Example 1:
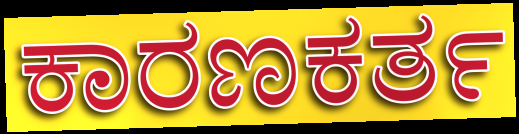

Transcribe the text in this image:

ಕಾರಣಕರ್ತ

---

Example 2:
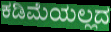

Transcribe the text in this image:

ಕಡಿಮೆಯಲ್ಲದ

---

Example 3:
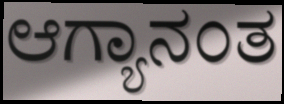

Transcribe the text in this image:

ಆಗ್ಯಾನಂತ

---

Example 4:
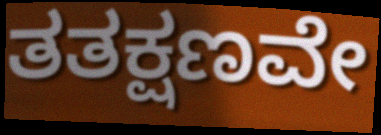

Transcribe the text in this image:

ತತಕ್ಷಣವೇ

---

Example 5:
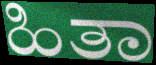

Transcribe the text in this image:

ಹಿತಾ